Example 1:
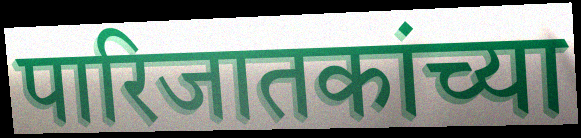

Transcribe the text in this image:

पारिजातकांच्या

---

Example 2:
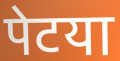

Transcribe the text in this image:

पेटया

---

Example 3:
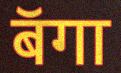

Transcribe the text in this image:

बॅगा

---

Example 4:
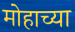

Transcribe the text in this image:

मोहाच्या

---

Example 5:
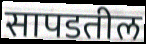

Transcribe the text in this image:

सापडतील